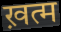
ख़त्म